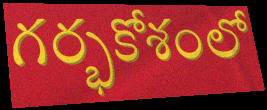
గర్భకోశంలో